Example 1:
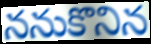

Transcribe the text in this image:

ననుకొనిన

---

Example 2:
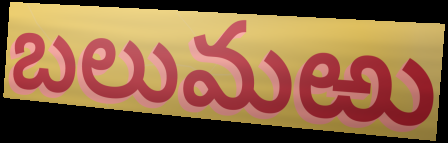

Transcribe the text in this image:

బలుమఱు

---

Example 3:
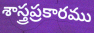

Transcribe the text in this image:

శాస్త్రప్రకారము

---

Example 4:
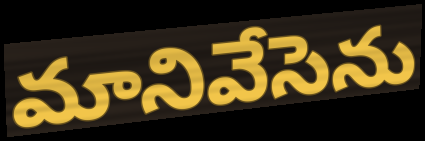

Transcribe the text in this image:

మానివేసెను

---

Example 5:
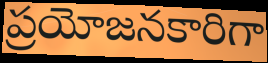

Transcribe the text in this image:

ప్రయోజనకారిగా